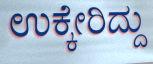
ಉಕ್ಕೇರಿದ್ದು